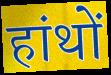
हांथों